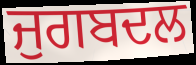
ਜੁਗਬਦਲ